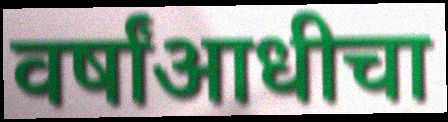
वर्षांआधीचा